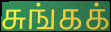
சுங்கக்